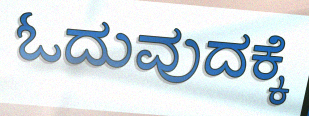
ಓದುವುದಕ್ಕೆ